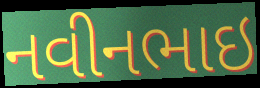
નવીનભાઇ